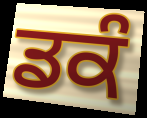
ਡਕੰ